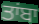
ਤਾਂਬਾ